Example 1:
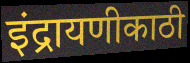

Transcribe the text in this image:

इंद्रायणीकाठी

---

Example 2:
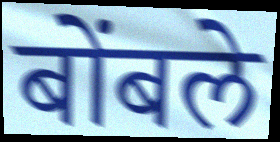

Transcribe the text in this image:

बोंबले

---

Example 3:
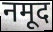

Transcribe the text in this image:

नमूद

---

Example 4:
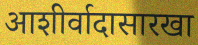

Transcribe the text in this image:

आशीर्वादासारखा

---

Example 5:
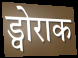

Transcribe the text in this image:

ड्वोराक